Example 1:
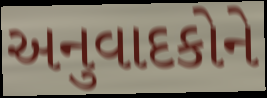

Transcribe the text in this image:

અનુવાદકોને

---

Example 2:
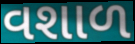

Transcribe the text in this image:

વશાળ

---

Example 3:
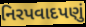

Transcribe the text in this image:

નિરપવાદપણું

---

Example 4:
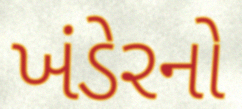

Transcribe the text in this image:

ખંડેરનો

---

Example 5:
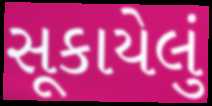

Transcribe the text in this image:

સૂકાયેલું